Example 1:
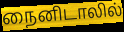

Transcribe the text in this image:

நைனிடாலில்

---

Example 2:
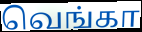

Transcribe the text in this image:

வெங்கா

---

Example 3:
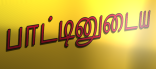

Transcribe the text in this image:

பாட்டினுடைய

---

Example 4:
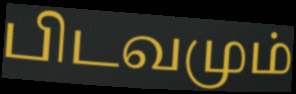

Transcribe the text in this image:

பிடவமும்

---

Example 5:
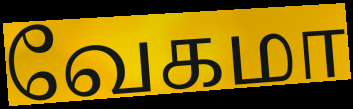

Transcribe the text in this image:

வேகமா